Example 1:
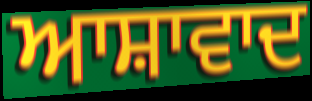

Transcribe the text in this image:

ਆਸ਼ਾਵਾਦ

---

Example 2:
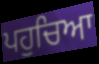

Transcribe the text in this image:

ਪਹੁਚਿਆ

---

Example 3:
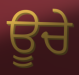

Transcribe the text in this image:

ਊਚੇ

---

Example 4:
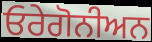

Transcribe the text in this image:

ਓਰੇਗੋਨੀਅਨ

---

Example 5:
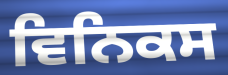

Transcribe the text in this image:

ਵਿਨਿਕਸ